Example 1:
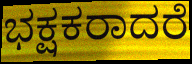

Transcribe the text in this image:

ಭಕ್ಷಕರಾದರೆ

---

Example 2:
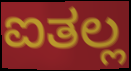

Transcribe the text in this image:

ಐತಲ್ಲ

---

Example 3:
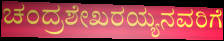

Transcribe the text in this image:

ಚಂದ್ರಶೇಖರಯ್ಯನವರಿಗೆ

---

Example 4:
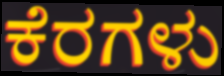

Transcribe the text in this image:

ಕೆರಗಳು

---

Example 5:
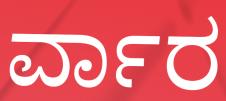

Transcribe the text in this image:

ರ್ವಾರ